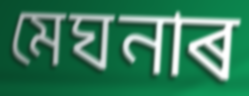
মেঘনাৰ